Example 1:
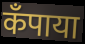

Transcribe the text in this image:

कँपाया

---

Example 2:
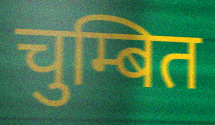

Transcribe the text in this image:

चुम्बित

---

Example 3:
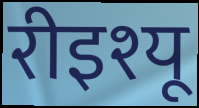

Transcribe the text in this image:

रीइश्यू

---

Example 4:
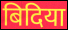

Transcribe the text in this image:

बिदिया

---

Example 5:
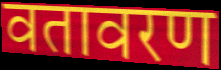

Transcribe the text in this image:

वतावरण